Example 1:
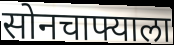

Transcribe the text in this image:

सोनचाफ्याला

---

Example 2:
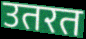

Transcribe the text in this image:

उतरत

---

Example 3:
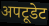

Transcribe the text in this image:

अपटूडेट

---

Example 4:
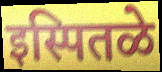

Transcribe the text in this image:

इस्पितळे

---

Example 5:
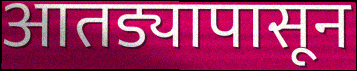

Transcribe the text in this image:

आतड्यापासून